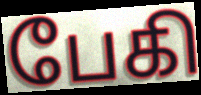
பேகி